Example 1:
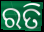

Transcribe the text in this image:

ରତି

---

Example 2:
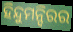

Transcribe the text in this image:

ହିନ୍ଦୁମନ୍ଦିରର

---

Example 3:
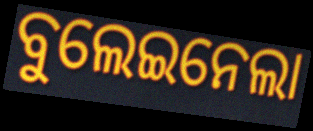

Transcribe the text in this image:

ବୁଲେଇନେଲା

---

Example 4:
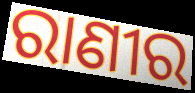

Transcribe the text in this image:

ରାଣୀର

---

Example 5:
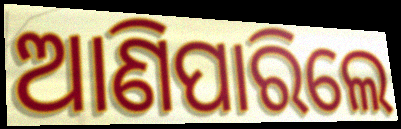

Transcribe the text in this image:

ଆଣିପାରିଲେ